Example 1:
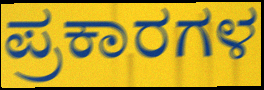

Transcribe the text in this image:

ಪ್ರಕಾರಗಳ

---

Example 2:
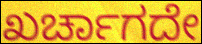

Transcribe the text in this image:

ಖರ್ಚಾಗದೇ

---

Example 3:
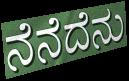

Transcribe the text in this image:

ನೆನೆದೆನು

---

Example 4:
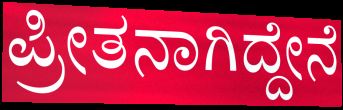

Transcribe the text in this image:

ಪ್ರೀತನಾಗಿದ್ದೇನೆ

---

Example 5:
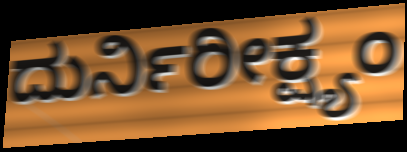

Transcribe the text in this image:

ದುರ್ನಿರೀಕ್ಷ್ಯಂ